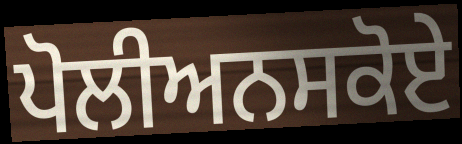
ਪੋਲੀਅਨਸਕੋਏ